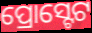
ପ୍ରୋସ୍ଟେଟ